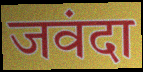
जवंदा